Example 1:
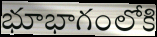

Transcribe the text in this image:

భూభాగంలోకి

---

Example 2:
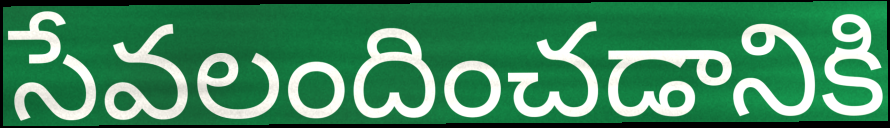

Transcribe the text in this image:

సేవలందించడానికి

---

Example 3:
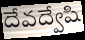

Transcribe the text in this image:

దేవద్వేషి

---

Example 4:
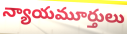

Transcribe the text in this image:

న్యాయమూర్తులు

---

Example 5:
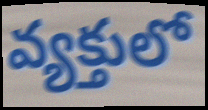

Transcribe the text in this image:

వ్యక్తులో